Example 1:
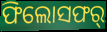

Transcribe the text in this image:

ଫିଲୋସଫର୍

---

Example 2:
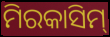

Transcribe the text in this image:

ମିରକାସିମ୍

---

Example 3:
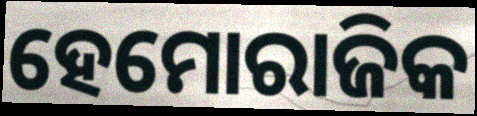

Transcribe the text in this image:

ହେମୋରାଜିକ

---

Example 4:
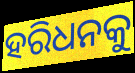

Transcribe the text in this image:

ହରିଧନକୁ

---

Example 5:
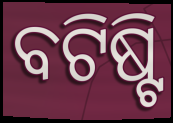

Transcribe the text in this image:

ବଟିଷ୍ଟି